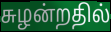
சுழன்றதில்